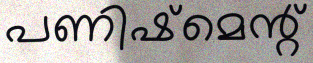
പണിഷ്മെന്റ്